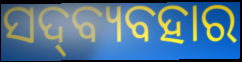
ସଦ୍‍ବ୍ୟବହାର